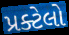
પ્રક્ટેલો